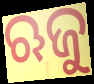
ଋଜୁ